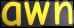
awn